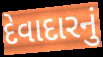
દેવાદારનું